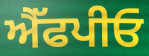
ਐੱਫਪੀਓ